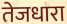
तेजधारा